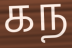
கந